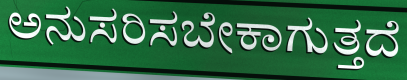
ಅನುಸರಿಸಬೇಕಾಗುತ್ತದೆ